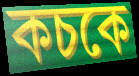
কচকে